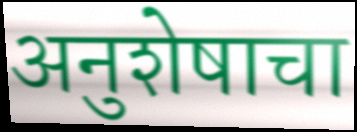
अनुशेषाचा